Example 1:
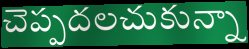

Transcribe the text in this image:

చెప్పదలచుకున్నా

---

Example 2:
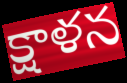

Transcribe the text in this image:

క్షాళన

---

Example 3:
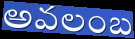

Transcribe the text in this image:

అవలంబ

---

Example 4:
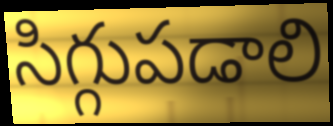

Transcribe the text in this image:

సిగ్గుపడాలి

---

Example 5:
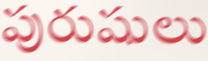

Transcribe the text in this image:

పురుషులు